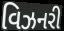
વિઝનરી